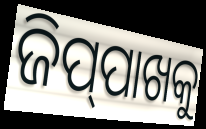
ଜିପ୍‌ପାଖକୁ